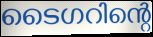
ടൈഗറിന്റെ